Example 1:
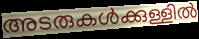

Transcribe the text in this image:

അടരുകൾക്കുള്ളിൽ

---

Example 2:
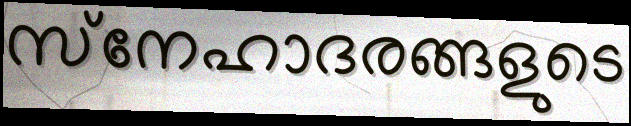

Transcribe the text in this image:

സ്‌നേഹാദരങ്ങളുടെ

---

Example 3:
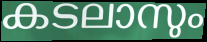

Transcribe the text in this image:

കടലാസും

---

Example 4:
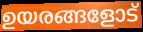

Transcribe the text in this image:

ഉയരങ്ങളോട്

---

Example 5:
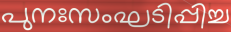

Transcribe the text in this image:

പുനഃസംഘടിപ്പിച്ച